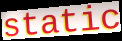
static